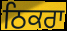
ਠਿਕਰਾ